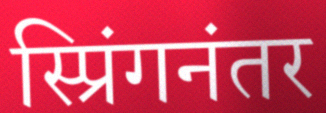
स्प्रिंगनंतर